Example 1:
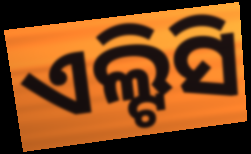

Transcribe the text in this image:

ଏଲ୍ଟିସି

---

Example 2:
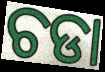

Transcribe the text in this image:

ଚଡା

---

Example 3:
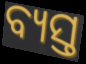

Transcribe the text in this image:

ବ୍ୟସ୍ତ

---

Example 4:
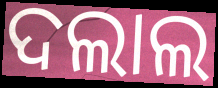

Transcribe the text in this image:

ଦଲାଲ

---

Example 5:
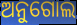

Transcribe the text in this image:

ଅନୁଗୋଲ